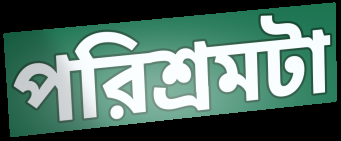
পরিশ্রমটা